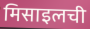
मिसाइलची